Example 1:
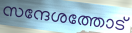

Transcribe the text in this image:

സന്ദേശത്തോട്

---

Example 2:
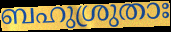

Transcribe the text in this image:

ബഹുശ്രുതാഃ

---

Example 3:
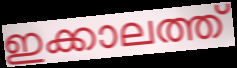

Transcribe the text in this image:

ഇക്കാലത്ത്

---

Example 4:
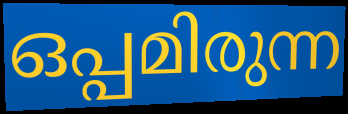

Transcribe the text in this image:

ഒപ്പമിരുന്ന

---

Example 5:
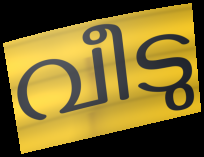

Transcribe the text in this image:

വീടു